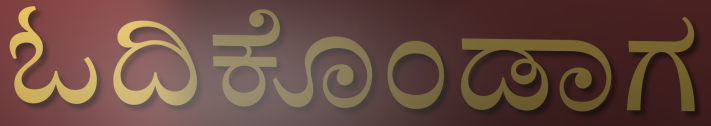
ಓದಿಕೊಂಡಾಗ